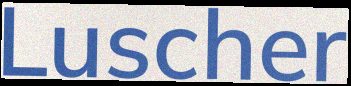
Luscher